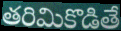
తరిమికొడితే